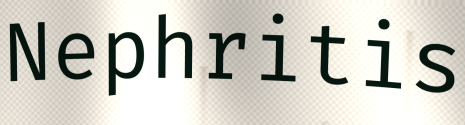
Nephritis